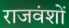
राजवंशों